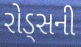
રોડ્સની